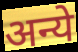
अन्ये